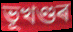
ভূখণ্ডৰ